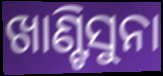
ଖାଣ୍ଟିସୁନା